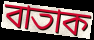
বাতাক